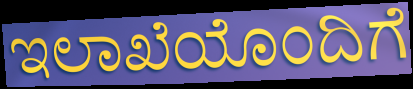
ಇಲಾಖೆಯೊಂದಿಗೆ